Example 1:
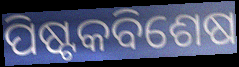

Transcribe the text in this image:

ପିଷ୍ଟକବିଶେଷ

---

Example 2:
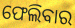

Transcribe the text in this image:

ଫେଲିବାର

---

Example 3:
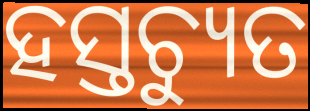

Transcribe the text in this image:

ହସ୍ତଚ୍ୟୁତ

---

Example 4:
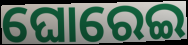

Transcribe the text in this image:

ଘୋରେଇ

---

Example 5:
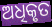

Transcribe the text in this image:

ଅଧିକୃତ